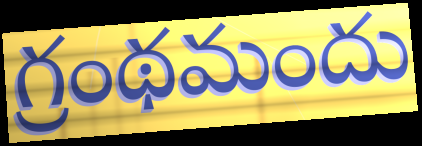
గ్రంథమందు